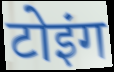
टोइंग